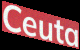
Ceuta